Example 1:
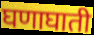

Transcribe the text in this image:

घणाघाती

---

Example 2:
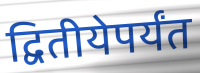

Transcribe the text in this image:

द्वितीयेपर्यंत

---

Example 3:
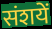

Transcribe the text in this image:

संशयें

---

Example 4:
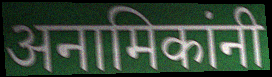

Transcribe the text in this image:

अनामिकांनी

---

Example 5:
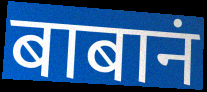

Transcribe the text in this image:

बाबानं